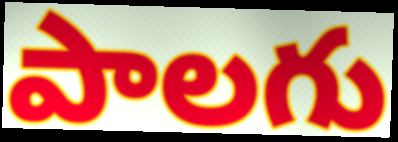
పాలగు